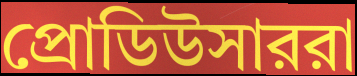
প্রোডিউসাররা